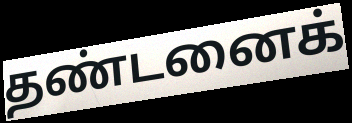
தண்டனைக்